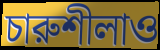
চারুশীলাও